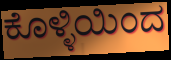
ಕೊಳ್ಳಿಯಿಂದ